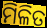
ମିଳିତ